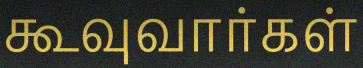
கூவுவார்கள்